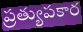
ప్రత్యుపకార